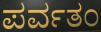
ಪರ್ವತಂ